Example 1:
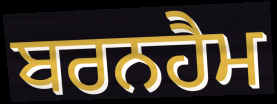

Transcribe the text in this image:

ਬਰਨਹੈਮ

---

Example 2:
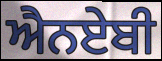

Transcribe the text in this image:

ਐਨਏਬੀ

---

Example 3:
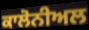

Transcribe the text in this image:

ਕਾਲੋਨੀਅਲ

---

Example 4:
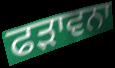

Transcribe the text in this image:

ਫੜਾਵਨਾ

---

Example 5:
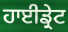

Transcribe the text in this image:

ਹਾਈਡ੍ਰੇਟ